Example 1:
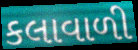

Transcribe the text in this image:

કલાવાળી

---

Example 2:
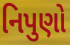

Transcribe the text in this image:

નિપુણો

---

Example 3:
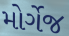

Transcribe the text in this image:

મોર્ગેજ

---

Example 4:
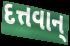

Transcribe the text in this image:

દત્તવાન્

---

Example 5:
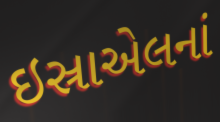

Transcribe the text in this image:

ઇસ્રાએલનાં